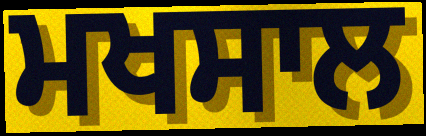
ਮਖਸਾਲ